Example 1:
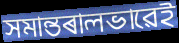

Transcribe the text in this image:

সমান্তৰালভাৱেই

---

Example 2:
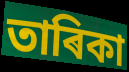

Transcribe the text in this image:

তাৰিকা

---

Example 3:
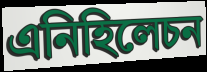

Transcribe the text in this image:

এনিহিলেচন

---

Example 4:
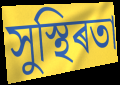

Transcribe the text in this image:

সুস্থিৰতা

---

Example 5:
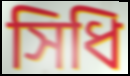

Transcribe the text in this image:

সিধি